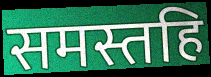
समस्तहि